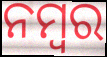
ନମ୍ବର